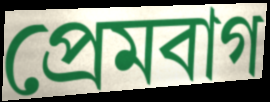
প্রেমবাগ